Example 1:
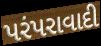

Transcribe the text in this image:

પરંપરાવાદી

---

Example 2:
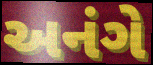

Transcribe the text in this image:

અનંગે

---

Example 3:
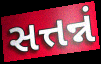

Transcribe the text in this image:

સત્તન્નં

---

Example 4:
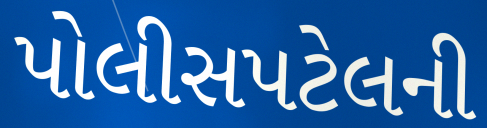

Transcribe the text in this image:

પોલીસપટેલની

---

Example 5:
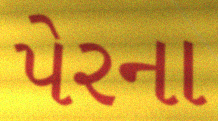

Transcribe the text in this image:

પેરના